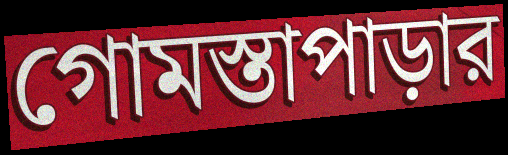
গোমস্তাপাড়ার